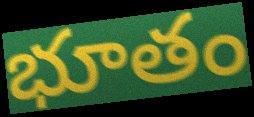
భూతం